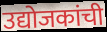
उद्योजकांची